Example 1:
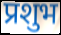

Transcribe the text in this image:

प्रशुभ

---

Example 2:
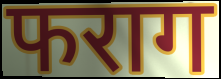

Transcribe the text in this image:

फराग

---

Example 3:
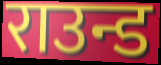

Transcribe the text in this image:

राउन्ड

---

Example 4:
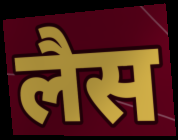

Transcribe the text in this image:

लैस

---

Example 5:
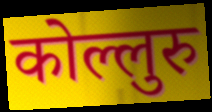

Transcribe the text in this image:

कोल्लुरु